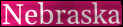
Nebraska